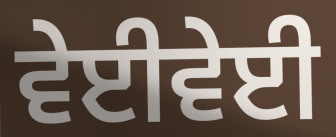
ਵੇਈਵੇਈ